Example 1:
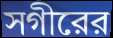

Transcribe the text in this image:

সগীরের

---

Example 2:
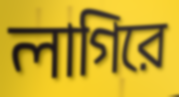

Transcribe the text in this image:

লাগিরে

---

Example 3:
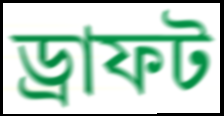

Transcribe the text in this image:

ড্রাফট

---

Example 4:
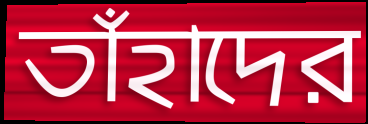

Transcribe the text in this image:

তাঁহাদের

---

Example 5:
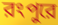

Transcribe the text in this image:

রংপুরে